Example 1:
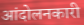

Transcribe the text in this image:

आंदोलनकारी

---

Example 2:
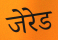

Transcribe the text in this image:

जेरेड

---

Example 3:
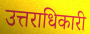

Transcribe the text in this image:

उत्तराधिकारी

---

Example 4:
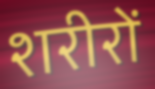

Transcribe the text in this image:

शरीरों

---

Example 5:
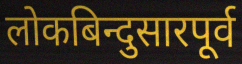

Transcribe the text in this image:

लोकबिन्दुसारपूर्व